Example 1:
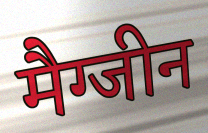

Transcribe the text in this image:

मैग्जीन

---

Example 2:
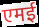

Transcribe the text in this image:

एमई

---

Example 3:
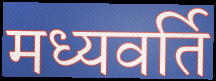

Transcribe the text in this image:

मध्यवर्ति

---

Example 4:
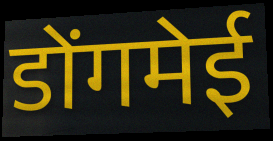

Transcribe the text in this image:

डोंगमेई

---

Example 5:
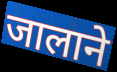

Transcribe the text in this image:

जालाने